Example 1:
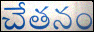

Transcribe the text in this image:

చేతనం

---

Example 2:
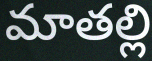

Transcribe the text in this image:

మాతల్లి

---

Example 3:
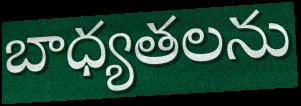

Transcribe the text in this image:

బాధ్యతలను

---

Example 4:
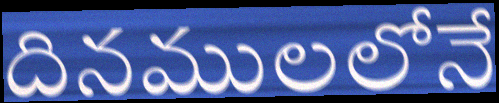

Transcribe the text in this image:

దినములలోనే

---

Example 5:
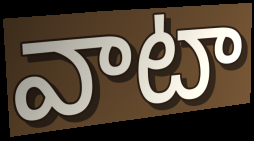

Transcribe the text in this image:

వాటా